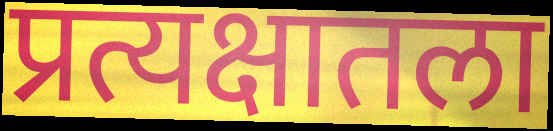
प्रत्यक्षातला